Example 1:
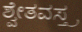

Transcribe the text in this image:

ಶ್ವೇತವಸ್ತ್ರ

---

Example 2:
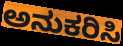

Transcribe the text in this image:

ಅನುಕರಿಸಿ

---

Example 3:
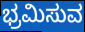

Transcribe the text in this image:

ಭ್ರಮಿಸುವ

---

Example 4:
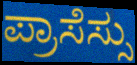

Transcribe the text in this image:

ಪ್ರಾಸೆಸ್ಸು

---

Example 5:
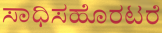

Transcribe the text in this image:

ಸಾಧಿಸಹೊರಟರೆ